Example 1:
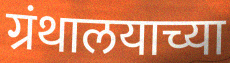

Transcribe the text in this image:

ग्रंथालयाच्या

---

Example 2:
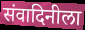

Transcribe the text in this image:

संवादिनीला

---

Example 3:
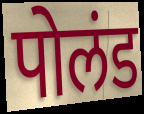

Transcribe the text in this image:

पोलंड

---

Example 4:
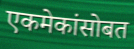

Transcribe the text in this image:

एकमेकांसोबत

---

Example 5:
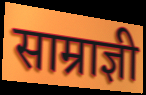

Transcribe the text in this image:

साम्राज्ञी